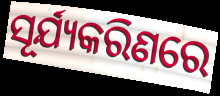
ସୂର୍ଯ୍ୟକରିଣରେ